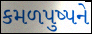
કમળપુષ્પને